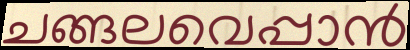
ചങ്ങലവെപ്പാൻ